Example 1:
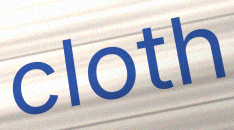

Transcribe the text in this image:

cloth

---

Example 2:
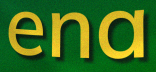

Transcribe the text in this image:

ena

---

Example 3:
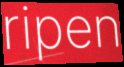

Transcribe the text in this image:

ripen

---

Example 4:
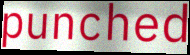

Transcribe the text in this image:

punched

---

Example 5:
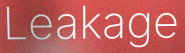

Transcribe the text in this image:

Leakage